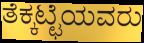
ತೆಕ್ಕಟ್ಟೆಯವರು